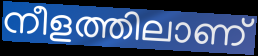
നീളത്തിലാണ്